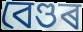
বেণ্ডৰ